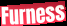
Furness